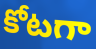
కోటగా